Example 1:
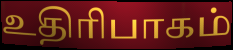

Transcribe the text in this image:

உதிரிபாகம்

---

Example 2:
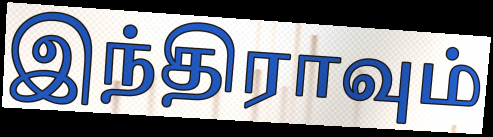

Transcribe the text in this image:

இந்திராவும்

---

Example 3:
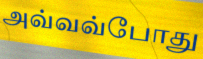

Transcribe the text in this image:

அவ்வவ்போது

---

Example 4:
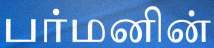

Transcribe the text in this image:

பர்மனின்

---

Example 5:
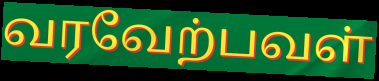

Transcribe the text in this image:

வரவேற்பவள்